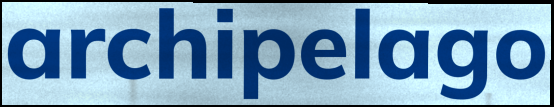
archipelago